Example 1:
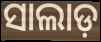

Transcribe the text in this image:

ସାଲାଡ଼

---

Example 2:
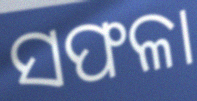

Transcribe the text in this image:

ସଫଳା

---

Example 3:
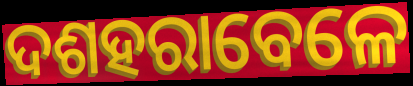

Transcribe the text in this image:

ଦଶହରାବେଳେ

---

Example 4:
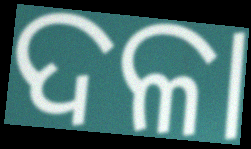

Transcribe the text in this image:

ଦଳା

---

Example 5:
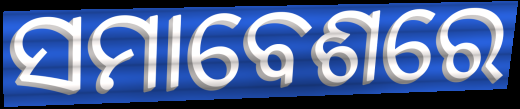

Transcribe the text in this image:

ସମାବେଶରେ